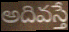
అదివస్తే